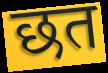
छत